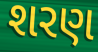
શરણ